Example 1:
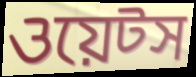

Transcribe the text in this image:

ওয়েট্স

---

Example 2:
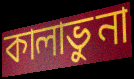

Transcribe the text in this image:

কালাভুনা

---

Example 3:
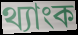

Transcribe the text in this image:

থ্যাংক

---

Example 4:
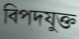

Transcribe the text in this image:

বিপদযুক্ত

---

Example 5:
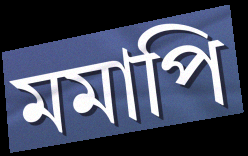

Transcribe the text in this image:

মমাপি